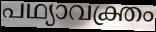
പഥ്യാവക്ത്രം